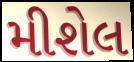
મીશેલ